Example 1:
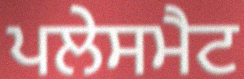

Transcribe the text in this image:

ਪਲੇਸਮੈਟ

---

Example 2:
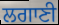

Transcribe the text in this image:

ਲਗਾਣੀ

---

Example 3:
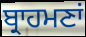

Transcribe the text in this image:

ਬ੍ਰਾਹਮਣਾਂ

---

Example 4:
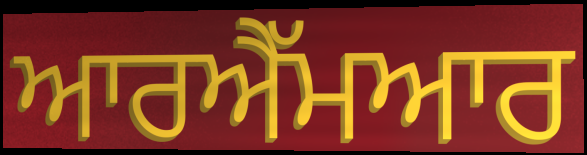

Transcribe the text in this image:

ਆਰਐੱਮਆਰ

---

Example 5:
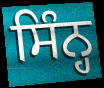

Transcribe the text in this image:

ਸਿੰਨ੍ਹ